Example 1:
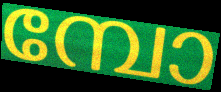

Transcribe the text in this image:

മ്പോ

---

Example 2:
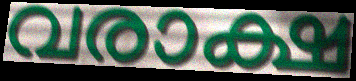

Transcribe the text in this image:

വരാക്ഷ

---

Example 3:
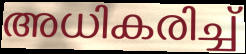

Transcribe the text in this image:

അധികരിച്ച്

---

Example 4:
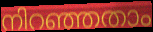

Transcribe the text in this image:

നിറഞ്ഞതാം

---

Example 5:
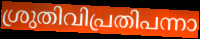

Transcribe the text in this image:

ശ്രുതിവിപ്രതിപന്നാ